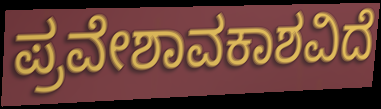
ಪ್ರವೇಶಾವಕಾಶವಿದೆ